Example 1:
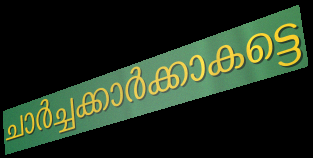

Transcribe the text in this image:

ചാർച്ചക്കാർക്കാകട്ടെ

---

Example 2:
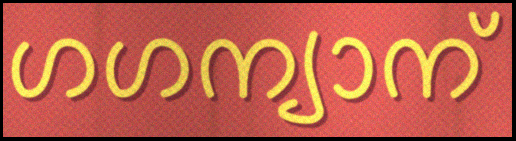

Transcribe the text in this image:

ഗഗന്യാന്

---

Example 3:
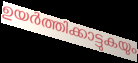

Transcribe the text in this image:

ഉയർത്തിക്കാട്ടുകയും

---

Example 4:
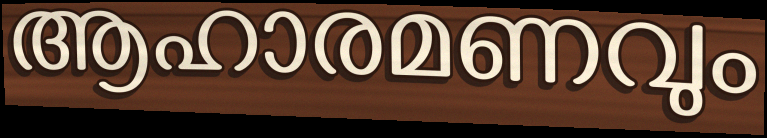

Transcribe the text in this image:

ആഹാരമണവും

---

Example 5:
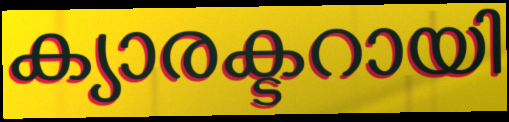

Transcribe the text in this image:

ക്യാരക്ടറായി